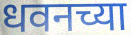
धवनच्या